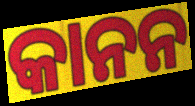
କାନନ